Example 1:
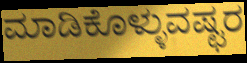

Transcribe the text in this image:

ಮಾಡಿಕೊಳ್ಳುವಷ್ಟರ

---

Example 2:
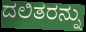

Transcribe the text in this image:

ದಲಿತರನ್ನು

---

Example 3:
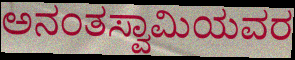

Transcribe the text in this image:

ಅನಂತಸ್ವಾಮಿಯವರ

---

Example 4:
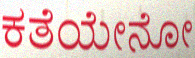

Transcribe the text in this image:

ಕತೆಯೇನೋ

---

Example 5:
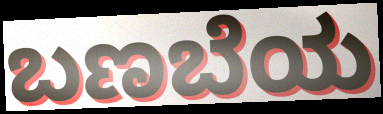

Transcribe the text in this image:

ಬಣಬೆಯ